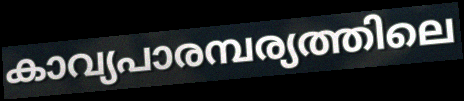
കാവ്യപാരമ്പര്യത്തിലെ